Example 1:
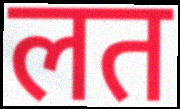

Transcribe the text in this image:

लत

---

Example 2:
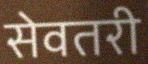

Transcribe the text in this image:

सेवतरी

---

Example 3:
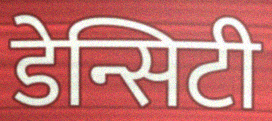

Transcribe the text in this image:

डेन्सिटी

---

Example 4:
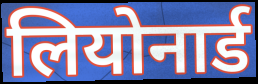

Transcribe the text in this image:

लियोनार्ड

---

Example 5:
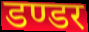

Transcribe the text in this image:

डण्डर